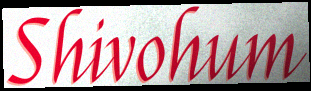
Shivohum